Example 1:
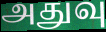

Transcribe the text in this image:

அதுவு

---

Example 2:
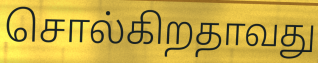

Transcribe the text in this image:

சொல்கிறதாவது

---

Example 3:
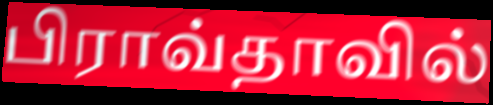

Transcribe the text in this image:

பிராவ்தாவில்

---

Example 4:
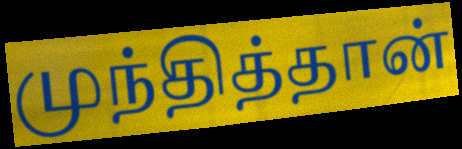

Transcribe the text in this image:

முந்தித்தான்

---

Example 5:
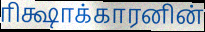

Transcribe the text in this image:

ரிக்ஷாக்காரனின்